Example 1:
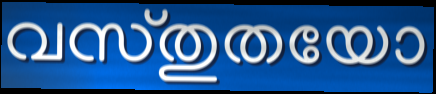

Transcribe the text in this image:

വസ്തുതയോ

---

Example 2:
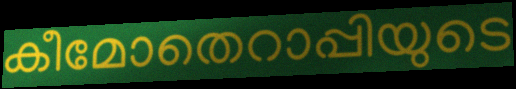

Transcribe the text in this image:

കീമോതെറാപ്പിയുടെ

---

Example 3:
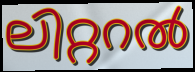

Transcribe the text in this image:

ലിറ്ററൽ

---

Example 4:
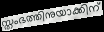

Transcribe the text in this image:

സ്തംഭത്തിനുയാക്കിന്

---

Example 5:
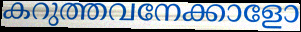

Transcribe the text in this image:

കറുത്തവനേക്കാളോ